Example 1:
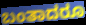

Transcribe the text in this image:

ಬಂತಾದರೂ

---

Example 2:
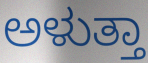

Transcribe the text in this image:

ಅಳುತ್ತಾ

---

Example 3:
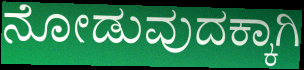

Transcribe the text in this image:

ನೋಡುವುದಕ್ಕಾಗಿ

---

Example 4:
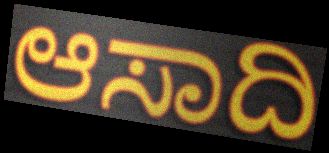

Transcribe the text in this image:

ಆಸಾದಿ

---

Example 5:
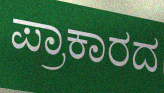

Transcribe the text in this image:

ಪ್ರಾಕಾರದ